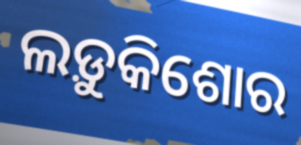
ଲଡ଼ୁକିଶୋର